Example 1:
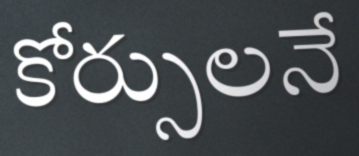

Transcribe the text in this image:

కోర్సులనే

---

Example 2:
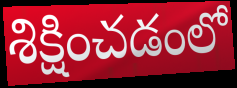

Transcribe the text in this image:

శిక్షించడంలో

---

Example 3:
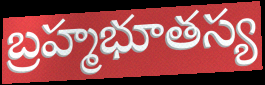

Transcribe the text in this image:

బ్రహ్మభూతస్య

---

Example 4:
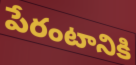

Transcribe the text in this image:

పేరంటానికి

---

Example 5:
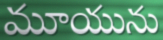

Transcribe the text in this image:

మూయును